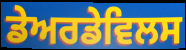
ਡੇਅਰਡੇਵਿਲਸ